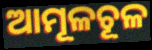
ଆମୂଳଚୂଳ